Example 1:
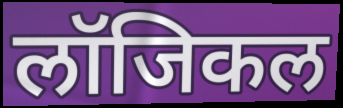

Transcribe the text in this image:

लॉजिकल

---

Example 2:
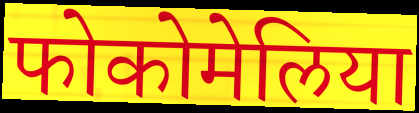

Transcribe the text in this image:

फोकोमेलिया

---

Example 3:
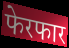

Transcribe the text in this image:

फेरफार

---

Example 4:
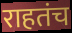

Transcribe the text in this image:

राहतंच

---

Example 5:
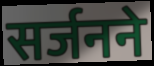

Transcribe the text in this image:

सर्जनने